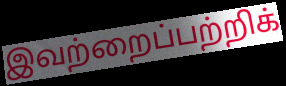
இவற்றைப்பற்றிக்